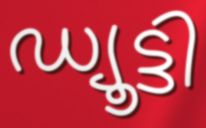
ഡ്യൂട്ടി